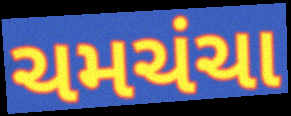
ચમચંચા